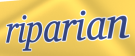
riparian